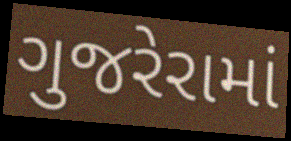
ગુજરેરામાં